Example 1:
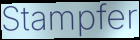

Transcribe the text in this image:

Stampfer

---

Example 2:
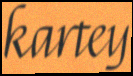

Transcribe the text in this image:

kartey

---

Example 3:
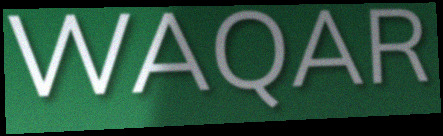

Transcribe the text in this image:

WAQAR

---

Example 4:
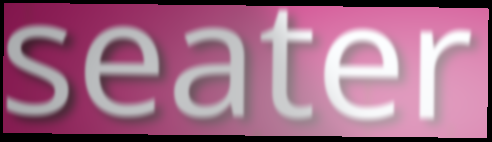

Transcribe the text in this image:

seater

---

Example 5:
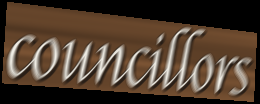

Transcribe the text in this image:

councillors